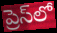
ప్రెస్‌లో